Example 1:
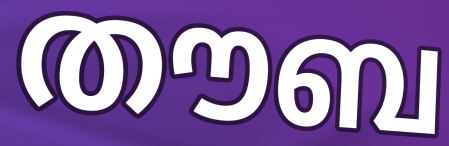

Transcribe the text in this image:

തൗബ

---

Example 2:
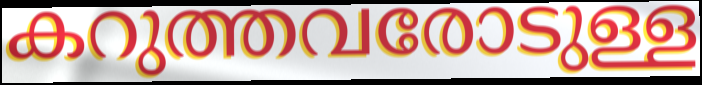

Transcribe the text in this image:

കറുത്തവരോടുള്ള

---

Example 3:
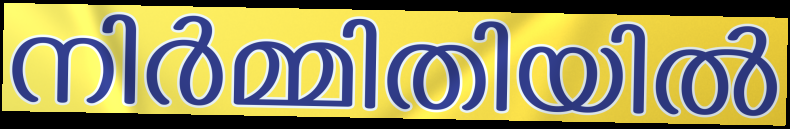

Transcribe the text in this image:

നിർമ്മിതിയിൽ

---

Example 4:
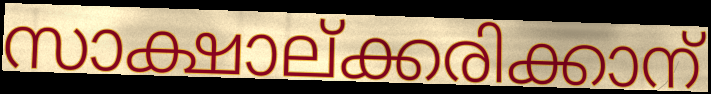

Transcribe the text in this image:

സാക്ഷാല്ക്കരിക്കാന്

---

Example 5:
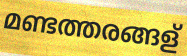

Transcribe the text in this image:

മണ്ടത്തരങ്ങള്